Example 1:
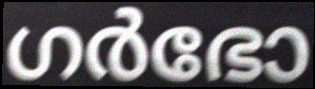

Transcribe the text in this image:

ഗർഭോ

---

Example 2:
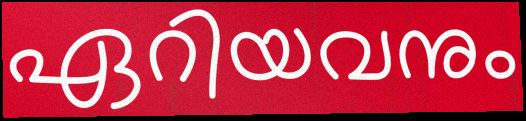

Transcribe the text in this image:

ഏറിയവനും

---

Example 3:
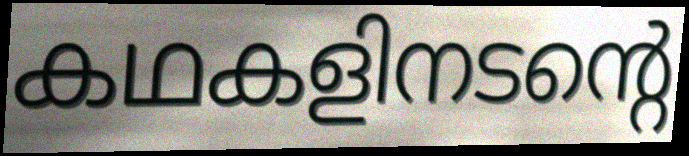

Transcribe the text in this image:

കഥകളിനടന്റെ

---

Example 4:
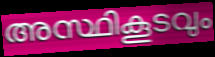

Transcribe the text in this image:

അസ്ഥികൂടവും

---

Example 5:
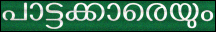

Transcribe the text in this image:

പാട്ടക്കാരെയും